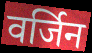
वर्जिन